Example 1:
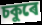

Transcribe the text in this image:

চকুৰে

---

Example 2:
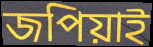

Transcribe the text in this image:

জপিয়াই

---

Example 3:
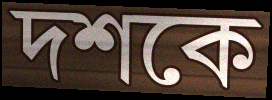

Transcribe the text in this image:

দশকে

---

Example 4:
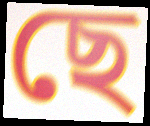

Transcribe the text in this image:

ছে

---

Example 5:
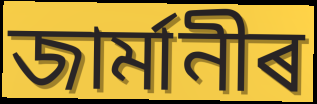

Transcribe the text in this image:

জাৰ্মানীৰ